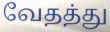
வேதத்து